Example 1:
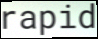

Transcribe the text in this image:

rapid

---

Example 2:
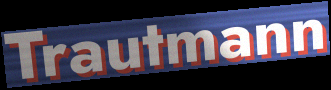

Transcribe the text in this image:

Trautmann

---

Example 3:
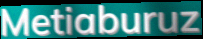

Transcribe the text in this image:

Metiaburuz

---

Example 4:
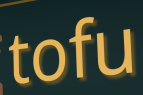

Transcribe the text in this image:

tofu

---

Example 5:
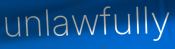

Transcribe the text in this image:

unlawfully